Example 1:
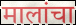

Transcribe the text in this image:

मालांचा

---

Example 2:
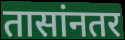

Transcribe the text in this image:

तासांनतर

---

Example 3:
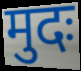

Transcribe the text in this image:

मुदः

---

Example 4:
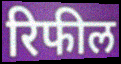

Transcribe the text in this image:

रिफील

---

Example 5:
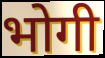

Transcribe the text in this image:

भोगी